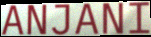
ANJANI